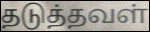
தடுத்தவள்